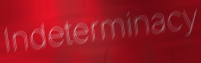
Indeterminacy